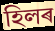
হিলৰ